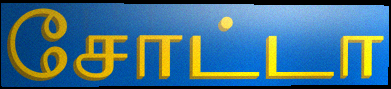
சோட்டா